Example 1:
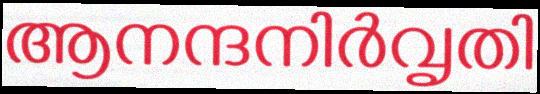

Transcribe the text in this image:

ആനന്ദനിർവൃതി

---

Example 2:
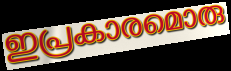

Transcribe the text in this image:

ഇപ്രകാരമൊരു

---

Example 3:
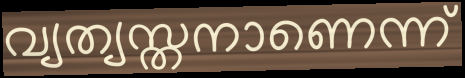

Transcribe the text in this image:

വ്യത്യസ്തനാണെന്ന്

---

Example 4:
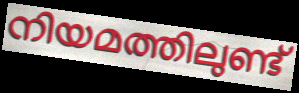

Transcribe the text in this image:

നിയമത്തിലുണ്ട്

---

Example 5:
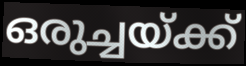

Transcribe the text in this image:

ഒരുച്ചയ്ക്ക്